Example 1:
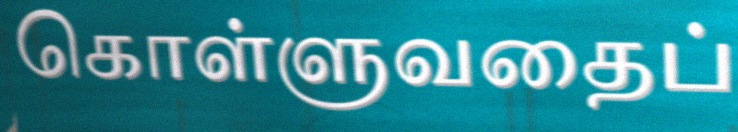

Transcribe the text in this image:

கொள்ளுவதைப்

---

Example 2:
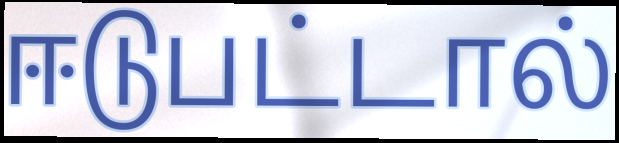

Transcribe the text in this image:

ஈடுபட்டால்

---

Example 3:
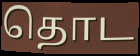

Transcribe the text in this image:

தொட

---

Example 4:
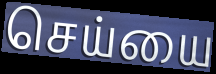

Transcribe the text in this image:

செய்யை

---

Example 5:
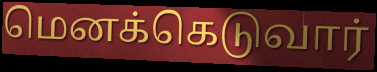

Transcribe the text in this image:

மெனக்கெடுவார்